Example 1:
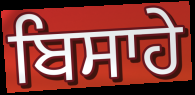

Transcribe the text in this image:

ਬਿਸਾਹੇ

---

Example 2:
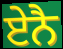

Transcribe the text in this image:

ਏਨੈ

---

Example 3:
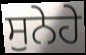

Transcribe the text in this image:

ਸੁਨੇਹੇ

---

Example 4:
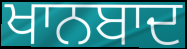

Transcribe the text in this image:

ਖਾਨਬਾਦ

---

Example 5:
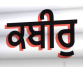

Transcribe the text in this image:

ਕਬੀਰੁ